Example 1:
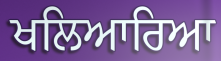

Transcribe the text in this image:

ਖਲਿਆਰਿਆ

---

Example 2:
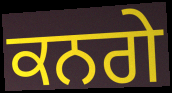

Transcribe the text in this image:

ਕਨਗੇ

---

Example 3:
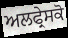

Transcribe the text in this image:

ਅਲਫ੍ਰੇਸਕੋ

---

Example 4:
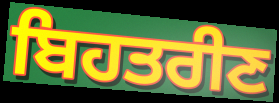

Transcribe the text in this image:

ਬਿਹਤਰੀਣ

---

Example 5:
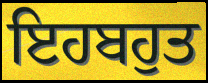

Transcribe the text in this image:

ਇਹਬਹੁਤ